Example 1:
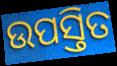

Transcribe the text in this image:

ଉପସ୍ତିତ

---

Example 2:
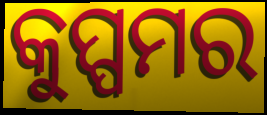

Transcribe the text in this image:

କୁପ୍ପମର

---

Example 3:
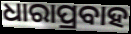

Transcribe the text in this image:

ଧାରାପ୍ରବାହ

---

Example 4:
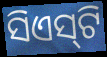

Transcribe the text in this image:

ସିଏସ୍‌ଟି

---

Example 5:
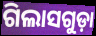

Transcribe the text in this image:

ଗିଲାସଗୁଡ଼ା